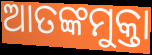
ଆତଙ୍କମୁକ୍ତା